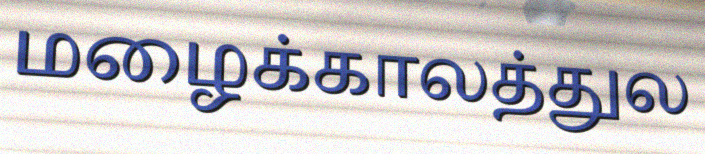
மழைக்காலத்துல